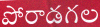
పోరాడగల